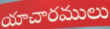
యాచారములు